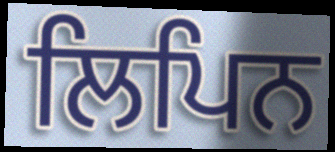
ਲਿਪਿਨ